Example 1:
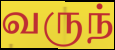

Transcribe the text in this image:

வருந்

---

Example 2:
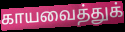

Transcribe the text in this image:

காயவைத்துக்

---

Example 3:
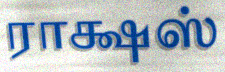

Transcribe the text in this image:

ராக்ஷஸ்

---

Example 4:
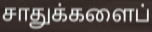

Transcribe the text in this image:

சாதுக்களைப்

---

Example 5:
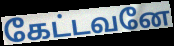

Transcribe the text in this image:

கேட்டவனே